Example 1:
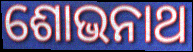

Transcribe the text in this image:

ଶୋଭନାଥ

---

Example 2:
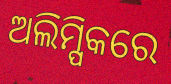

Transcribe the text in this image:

ଅଲିମ୍ପିକରେ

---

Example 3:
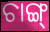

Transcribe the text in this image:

ଚାଙ୍ଗ୍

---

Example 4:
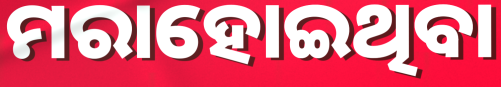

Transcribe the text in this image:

ମରାହୋଇଥିବା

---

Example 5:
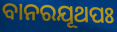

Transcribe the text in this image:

ବାନରଯୂଥପଃ